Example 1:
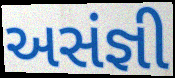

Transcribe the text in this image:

અસંજ્ઞી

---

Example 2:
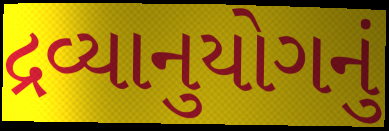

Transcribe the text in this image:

દ્રવ્યાનુયોગનું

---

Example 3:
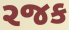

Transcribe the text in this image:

રજક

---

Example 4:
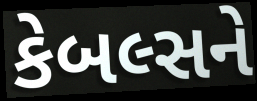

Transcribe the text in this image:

કેબલ્સને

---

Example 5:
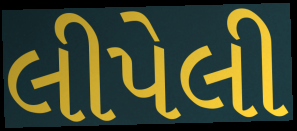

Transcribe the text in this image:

લીપેલી